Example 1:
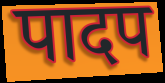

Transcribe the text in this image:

पादप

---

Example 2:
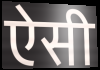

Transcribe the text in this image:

ऐसी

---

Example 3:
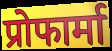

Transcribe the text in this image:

प्रोफार्मा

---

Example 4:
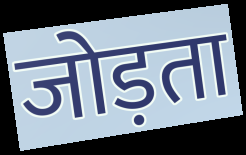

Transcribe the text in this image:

जोड़ता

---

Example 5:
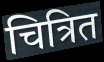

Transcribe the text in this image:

चित्रित